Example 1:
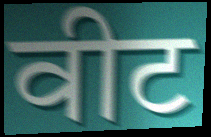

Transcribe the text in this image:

वीट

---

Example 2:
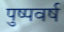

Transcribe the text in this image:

पुष्पवर्ष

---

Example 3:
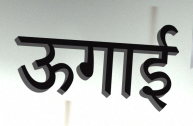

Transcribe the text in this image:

ऊगाई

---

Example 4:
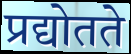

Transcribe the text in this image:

प्रद्योतते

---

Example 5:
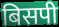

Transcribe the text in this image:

बिसपी